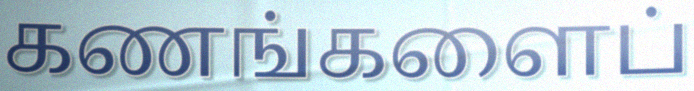
கணங்களைப்